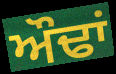
ਔਢਾਂ